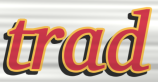
trad